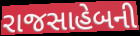
રાજસાહેબની